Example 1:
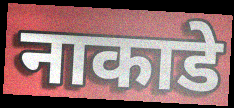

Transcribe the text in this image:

नाकाडे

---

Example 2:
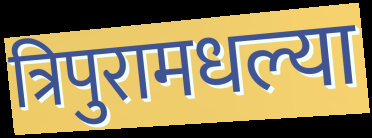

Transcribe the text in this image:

त्रिपुरामधल्या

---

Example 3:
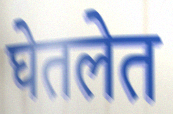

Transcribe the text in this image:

घेतलेत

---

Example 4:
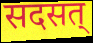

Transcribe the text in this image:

सदसत्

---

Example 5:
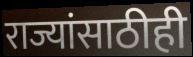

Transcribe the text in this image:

राज्यांसाठीही